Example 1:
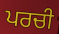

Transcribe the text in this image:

ਪਰਚੀ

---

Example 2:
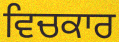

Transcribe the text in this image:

ਵਿਚਕਾਰ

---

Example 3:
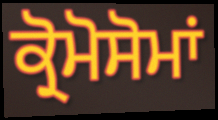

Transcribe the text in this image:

ਕ੍ਰੋਮੋਸੋਮਾਂ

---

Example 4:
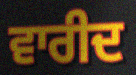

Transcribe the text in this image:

ਵਾਰੀਦ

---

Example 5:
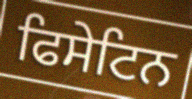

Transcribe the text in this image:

ਫਿਸੇਟਿਨ